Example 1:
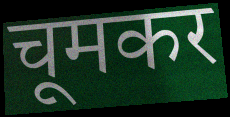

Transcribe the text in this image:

चूमकर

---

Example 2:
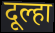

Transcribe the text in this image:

दूल्हा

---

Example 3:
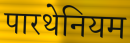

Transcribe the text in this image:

पारथेनियम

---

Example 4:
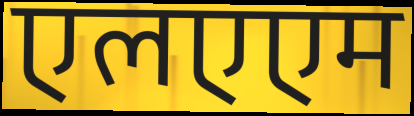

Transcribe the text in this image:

एलएएम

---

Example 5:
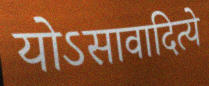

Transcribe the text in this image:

योऽसावादित्ये